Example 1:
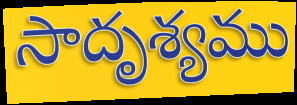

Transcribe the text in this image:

సాదృశ్యము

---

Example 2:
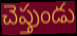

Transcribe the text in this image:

చెప్తుండు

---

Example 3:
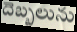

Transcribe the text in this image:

దెబ్బలును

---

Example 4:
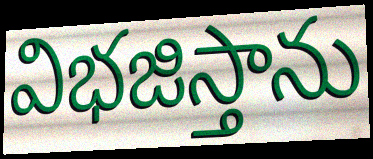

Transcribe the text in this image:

విభజిస్తాను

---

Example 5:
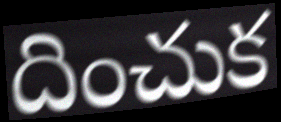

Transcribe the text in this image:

దించుక